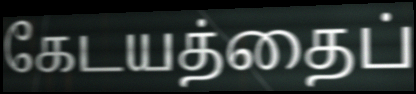
கேடயத்தைப்